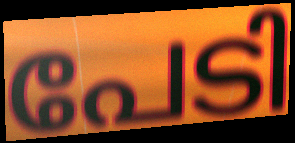
പേടി